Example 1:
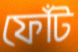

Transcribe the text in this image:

ফোঁট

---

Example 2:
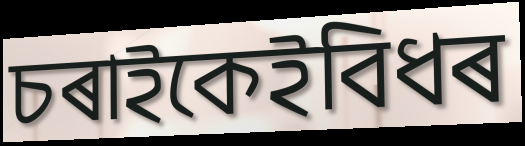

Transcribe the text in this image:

চৰাইকেইবিধৰ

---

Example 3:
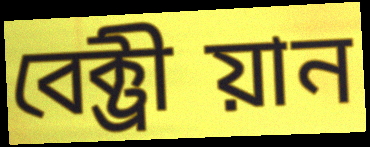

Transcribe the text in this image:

বেক্ট্ৰীয়ান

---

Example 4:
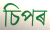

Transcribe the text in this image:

চিপৰ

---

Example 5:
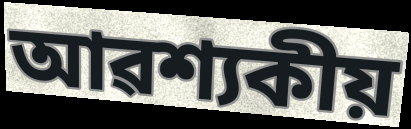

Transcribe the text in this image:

আৱশ্যকীয়